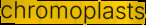
chromoplasts